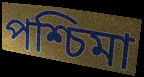
পশ্চিমা